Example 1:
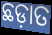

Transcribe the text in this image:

ଛଡ଼ାତ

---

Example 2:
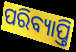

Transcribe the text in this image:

ପରିବ୍ୟାପ୍ତି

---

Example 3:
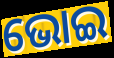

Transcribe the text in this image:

ଭୋଇ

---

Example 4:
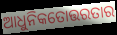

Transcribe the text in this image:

ଆଧୁନିକତୋତ୍ତରତାର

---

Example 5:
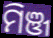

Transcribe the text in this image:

ମିଞ୍ଜ